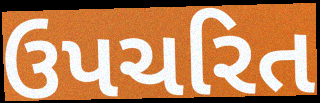
ઉપચરિત